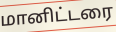
மானிட்டரை